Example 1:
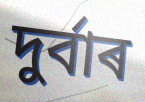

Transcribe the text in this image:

দুৰ্বাৰ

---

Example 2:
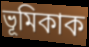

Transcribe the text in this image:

ভূমিকাক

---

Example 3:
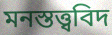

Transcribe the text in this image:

মনস্তত্ত্ববিদ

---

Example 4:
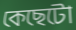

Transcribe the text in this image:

কেছেটো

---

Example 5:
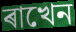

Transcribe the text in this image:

ৰাখেন